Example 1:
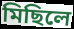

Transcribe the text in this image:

মিছিলে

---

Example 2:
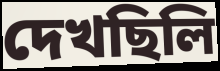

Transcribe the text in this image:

দেখছিলি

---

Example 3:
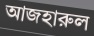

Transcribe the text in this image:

আজহারুল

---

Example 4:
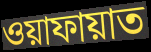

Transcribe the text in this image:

ওয়াফায়াত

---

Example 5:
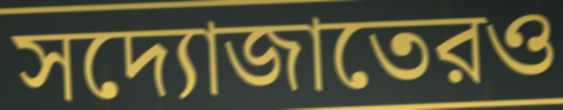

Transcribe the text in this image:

সদ্যোজাতেরও